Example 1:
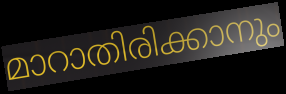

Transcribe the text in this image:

മാറാതിരിക്കാനും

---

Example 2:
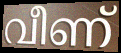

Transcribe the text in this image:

വീണ്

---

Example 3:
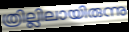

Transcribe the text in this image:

ത്രില്ലിലായിരുന്നു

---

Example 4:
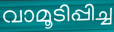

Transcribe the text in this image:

വാമൂടിപ്പിച്ച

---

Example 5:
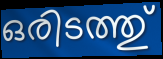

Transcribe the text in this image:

ഒരിടത്തു്